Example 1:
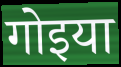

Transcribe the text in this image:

गोइया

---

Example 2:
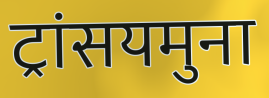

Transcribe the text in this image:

ट्रांसयमुना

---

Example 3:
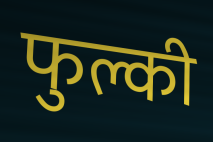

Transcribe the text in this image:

फुल्की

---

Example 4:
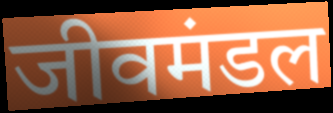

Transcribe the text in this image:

जीवमंडल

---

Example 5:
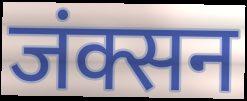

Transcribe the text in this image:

जंक्सन